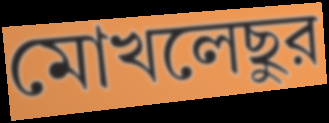
মোখলেছুর